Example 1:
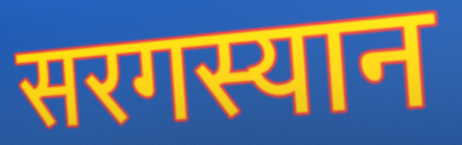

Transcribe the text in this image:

सरगस्यान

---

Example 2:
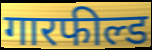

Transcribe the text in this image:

गारफील्ड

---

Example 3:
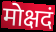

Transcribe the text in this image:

मोक्षदं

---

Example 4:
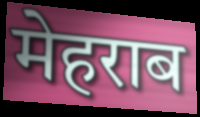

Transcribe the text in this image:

मेहराब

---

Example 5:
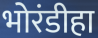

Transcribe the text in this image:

भोरंडीहा